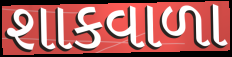
શાકવાળા